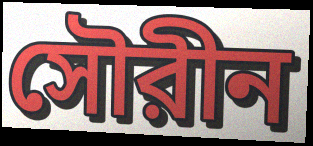
সৌরীন